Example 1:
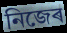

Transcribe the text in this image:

নিজেৰ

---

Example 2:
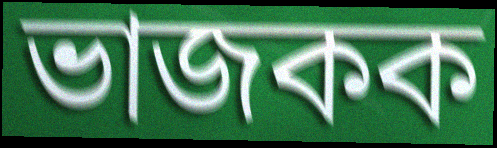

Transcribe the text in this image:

ভাজকক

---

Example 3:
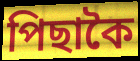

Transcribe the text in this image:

পিছাকৈ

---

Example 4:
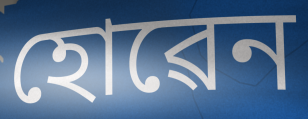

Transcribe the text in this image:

হোৱেন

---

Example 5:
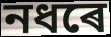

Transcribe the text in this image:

নধৰে